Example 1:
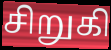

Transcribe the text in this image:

சிறுகி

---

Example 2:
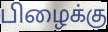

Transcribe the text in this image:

பிழைக்கு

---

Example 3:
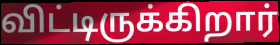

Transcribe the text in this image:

விட்டிருக்கிறார்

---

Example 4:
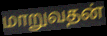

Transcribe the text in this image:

மாறுவதன்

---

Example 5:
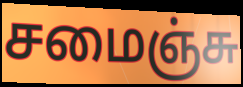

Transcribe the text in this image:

சமைஞ்சு